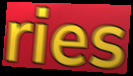
ries